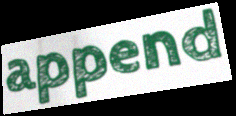
append